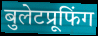
बुलेटप्रूफिंग